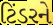
ટિંડરને